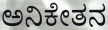
ಅನಿಕೇತನ